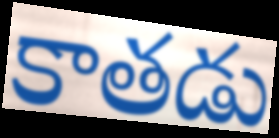
కాతడు